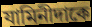
যামিনীদাকে